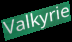
Valkyrie